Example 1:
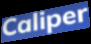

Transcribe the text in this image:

Caliper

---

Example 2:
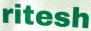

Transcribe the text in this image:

ritesh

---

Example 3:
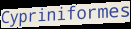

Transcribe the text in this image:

Cypriniformes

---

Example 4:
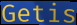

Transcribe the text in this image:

Getis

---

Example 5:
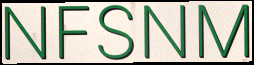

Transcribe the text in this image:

NFSNM